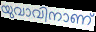
യുവാവിനാണ്